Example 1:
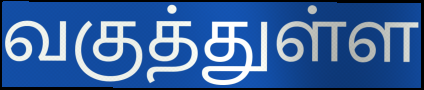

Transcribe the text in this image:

வகுத்துள்ள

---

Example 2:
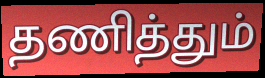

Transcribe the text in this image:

தணித்தும்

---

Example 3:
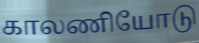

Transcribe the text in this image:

காலணியோடு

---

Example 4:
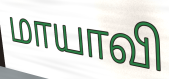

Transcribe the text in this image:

மாயாவி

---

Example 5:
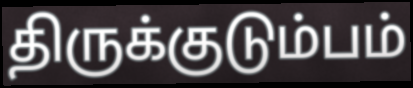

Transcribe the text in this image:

திருக்குடும்பம்